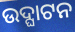
ଉଦ୍ଘାଟନ